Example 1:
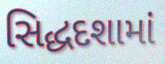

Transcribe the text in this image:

સિદ્ધદશામાં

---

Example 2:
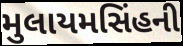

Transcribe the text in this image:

મુલાયમસિંહની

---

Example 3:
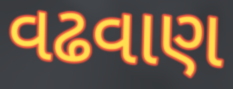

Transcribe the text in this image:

વઢવાણ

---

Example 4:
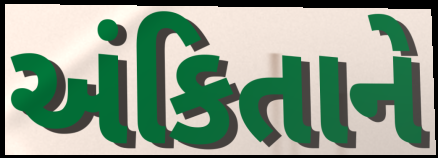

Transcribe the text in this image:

અંકિતાને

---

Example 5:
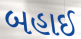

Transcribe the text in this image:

બહાઈ